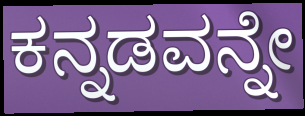
ಕನ್ನಡವನ್ನೇ